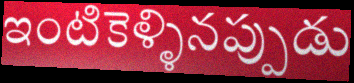
ఇంటికెళ్ళినప్పుడు